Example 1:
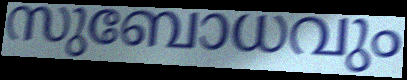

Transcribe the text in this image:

സുബോധവും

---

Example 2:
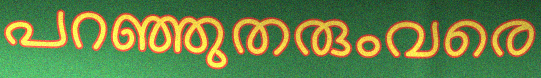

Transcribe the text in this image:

പറഞ്ഞുതരുംവരെ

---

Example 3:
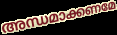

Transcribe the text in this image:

അന്ധമാക്കണമേ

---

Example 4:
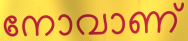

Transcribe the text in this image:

നോവാണ്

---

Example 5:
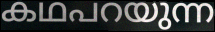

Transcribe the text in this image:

കഥപറയുന്ന